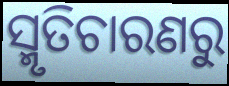
ସ୍ମୃତିଚାରଣରୁ